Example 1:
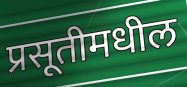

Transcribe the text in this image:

प्रसूतीमधील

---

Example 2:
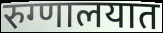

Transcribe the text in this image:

रुग्णालयात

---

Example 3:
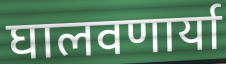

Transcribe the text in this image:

घालवणार्या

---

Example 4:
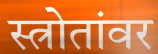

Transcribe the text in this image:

स्त्रोतांवर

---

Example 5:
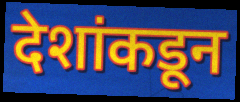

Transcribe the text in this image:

देशांकडून